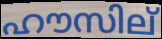
ഹൗസില്